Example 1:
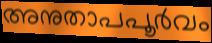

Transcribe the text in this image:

അനുതാപപൂർവം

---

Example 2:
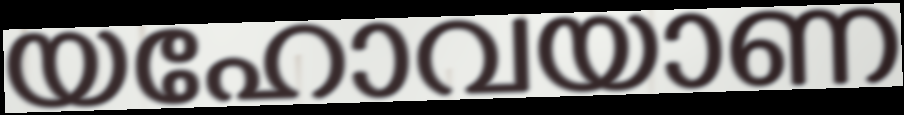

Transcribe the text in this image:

യഹോവയാണ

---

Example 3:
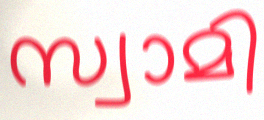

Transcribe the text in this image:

സ്വാമി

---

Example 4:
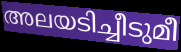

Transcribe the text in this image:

അലയടിച്ചീടുമീ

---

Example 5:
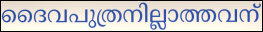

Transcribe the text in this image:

ദൈവപുത്രനില്ലാത്തവന്